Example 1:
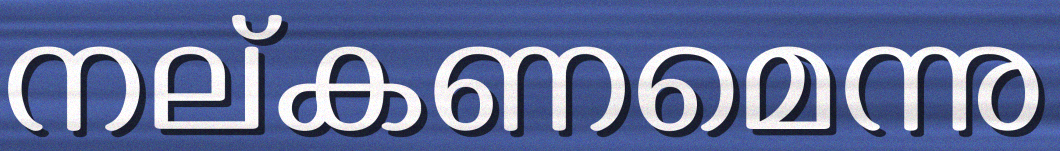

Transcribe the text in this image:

നല്‌കണമെന്നു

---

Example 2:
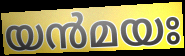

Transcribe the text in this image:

യൻമയഃ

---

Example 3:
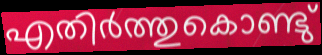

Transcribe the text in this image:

എതിർത്തുകൊണ്ടു്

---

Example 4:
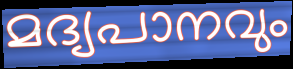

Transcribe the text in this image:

മദ്യപാനവും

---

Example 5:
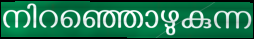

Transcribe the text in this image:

നിറഞ്ഞൊഴുകുന്ന